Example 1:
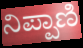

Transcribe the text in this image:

ನಿಪ್ಪಾಣಿ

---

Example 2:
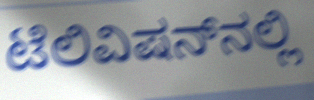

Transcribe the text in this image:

ಟೆಲಿವಿಷನ್‌ನಲ್ಲಿ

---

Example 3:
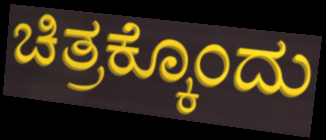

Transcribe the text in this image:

ಚಿತ್ರಕ್ಕೊಂದು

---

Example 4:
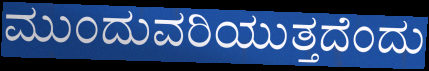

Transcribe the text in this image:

ಮುಂದುವರಿಯುತ್ತದೆಂದು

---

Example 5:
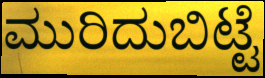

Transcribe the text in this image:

ಮುರಿದುಬಿಟ್ಟೆ